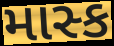
માસ્ક